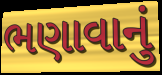
ભણાવાનું